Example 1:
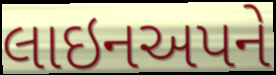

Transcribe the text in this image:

લાઇનઅપને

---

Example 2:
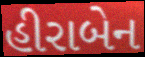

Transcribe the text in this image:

હીરાબેન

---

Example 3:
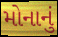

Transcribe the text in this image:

મોનાનું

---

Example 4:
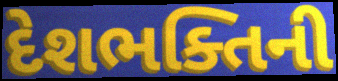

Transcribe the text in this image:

દેશભક્તિની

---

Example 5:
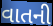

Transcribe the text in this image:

વાતની